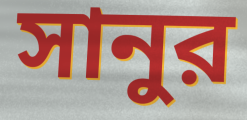
সানুর